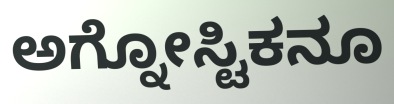
ಅಗ್ನೋಸ್ಟಿಕನೂ